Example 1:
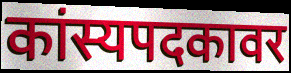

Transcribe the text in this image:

कांस्यपदकावर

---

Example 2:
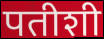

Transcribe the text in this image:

पतीशी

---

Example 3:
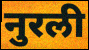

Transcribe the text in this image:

नुरली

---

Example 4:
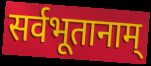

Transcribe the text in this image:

सर्वभूतानाम्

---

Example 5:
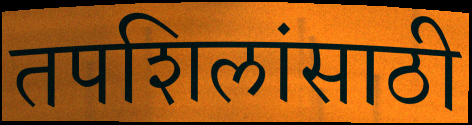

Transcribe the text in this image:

तपशिलांसाठी